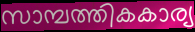
സാമ്പത്തികകാര്യ